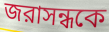
জরাসন্ধকে